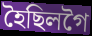
হৈছিলগৈ